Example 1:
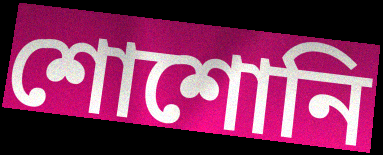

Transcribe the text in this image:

শোশোনি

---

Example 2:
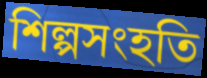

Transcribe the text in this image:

শিল্পসংহতি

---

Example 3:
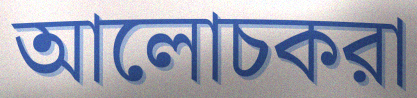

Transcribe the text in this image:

আলোচকরা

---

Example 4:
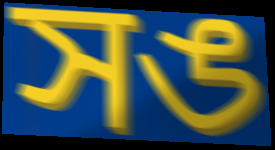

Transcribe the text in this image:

সঙ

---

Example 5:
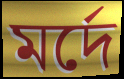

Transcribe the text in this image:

মর্দে